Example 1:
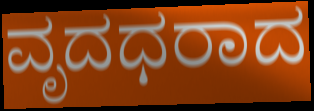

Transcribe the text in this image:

ವೃದಧರಾದ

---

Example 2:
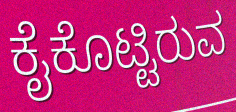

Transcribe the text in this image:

ಕೈಕೊಟ್ಟಿರುವ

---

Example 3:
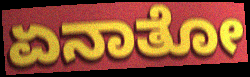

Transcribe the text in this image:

ಏನಾತೋ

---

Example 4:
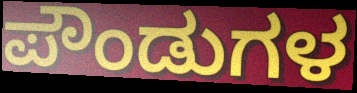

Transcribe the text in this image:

ಪೌಂಡುಗಳ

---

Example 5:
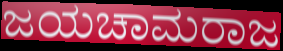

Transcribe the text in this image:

ಜಯಚಾಮರಾಜ